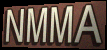
NMMA